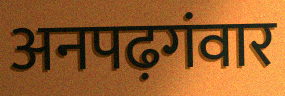
अनपढ़गंवार